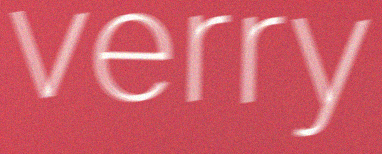
verry